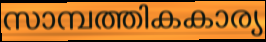
സാമ്പത്തികകാര്യ